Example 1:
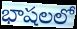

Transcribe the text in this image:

భాషలలో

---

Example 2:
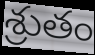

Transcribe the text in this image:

శ్రుతం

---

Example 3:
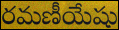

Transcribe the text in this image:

రమణీయేషు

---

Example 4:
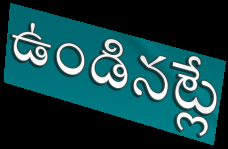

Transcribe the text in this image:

ఉండినట్లే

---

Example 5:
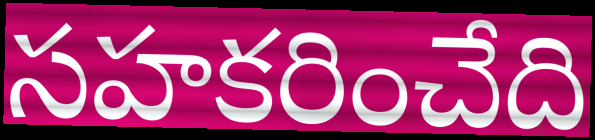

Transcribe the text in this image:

సహకరించేది